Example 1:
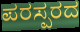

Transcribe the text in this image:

ಪರಸ್ಪರದ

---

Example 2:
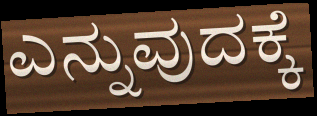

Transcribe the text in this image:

ಎನ್ನುವುದಕ್ಕೆ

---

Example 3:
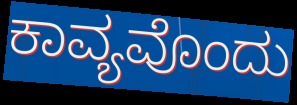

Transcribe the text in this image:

ಕಾವ್ಯವೊಂದು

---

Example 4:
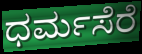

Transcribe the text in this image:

ಧರ್ಮಸೆರೆ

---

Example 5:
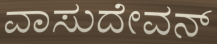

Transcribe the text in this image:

ವಾಸುದೇವನ್